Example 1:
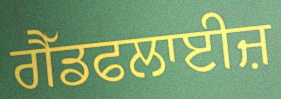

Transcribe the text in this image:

ਗੈੱਡਫਲਾਈਜ਼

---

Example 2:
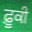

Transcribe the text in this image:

ਫ਼ੂਕੀ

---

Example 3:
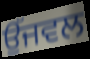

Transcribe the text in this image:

ਉੱਜਵਲ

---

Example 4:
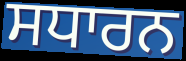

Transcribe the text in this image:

ਸਧਾਰਨ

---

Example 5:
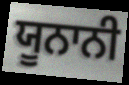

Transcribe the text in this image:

ਯੂਨਾਨੀ